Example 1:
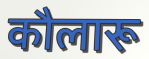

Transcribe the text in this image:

कौलारू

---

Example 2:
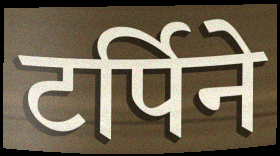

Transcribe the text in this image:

टर्पिने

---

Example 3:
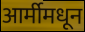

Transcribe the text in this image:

आर्मीमधून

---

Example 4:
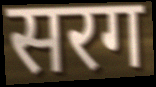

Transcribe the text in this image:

सरग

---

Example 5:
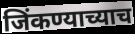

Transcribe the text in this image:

जिंकण्याच्याच